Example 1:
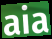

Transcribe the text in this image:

aia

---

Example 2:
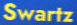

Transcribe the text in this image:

Swartz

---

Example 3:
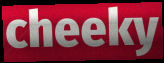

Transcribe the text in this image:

cheeky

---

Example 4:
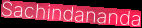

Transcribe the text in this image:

Sachindananda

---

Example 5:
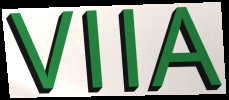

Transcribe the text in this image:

VIIA